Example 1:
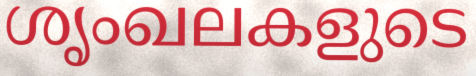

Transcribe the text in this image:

ശൃംഖലകളുടെ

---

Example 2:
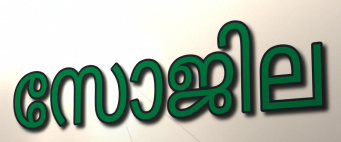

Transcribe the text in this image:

സോജില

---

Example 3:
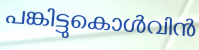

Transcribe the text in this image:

പങ്കിട്ടുകൊൾവിൻ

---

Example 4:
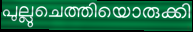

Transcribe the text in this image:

പുല്ലുചെത്തിയൊരുക്കി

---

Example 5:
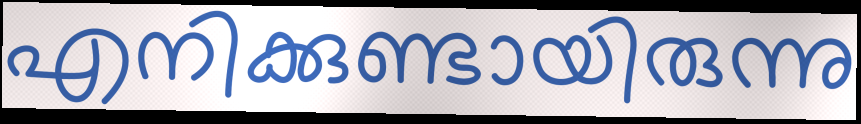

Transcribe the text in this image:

എനിക്കുണ്ടായിരുന്നു